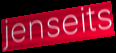
jenseits